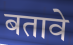
बतावे